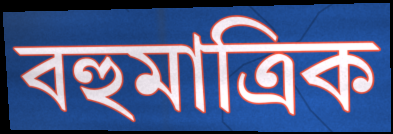
বহুমাত্রিক